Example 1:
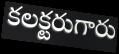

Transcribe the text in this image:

కలక్టరుగారు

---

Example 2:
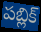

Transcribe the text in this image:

పబ్లిక్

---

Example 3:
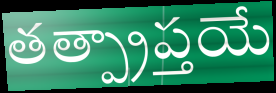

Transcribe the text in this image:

తత్ప్రాప్తయే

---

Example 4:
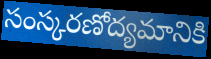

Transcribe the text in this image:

సంస్కరణోద్యమానికి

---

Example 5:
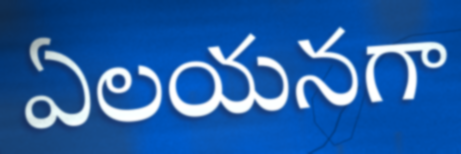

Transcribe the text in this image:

ఏలయనగా